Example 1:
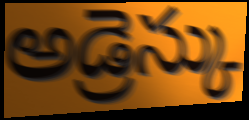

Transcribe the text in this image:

అడ్రెస్కు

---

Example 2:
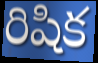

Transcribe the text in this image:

రిషిక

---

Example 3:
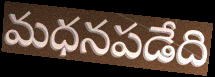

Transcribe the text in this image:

మధనపడేది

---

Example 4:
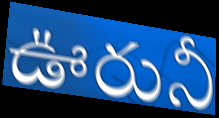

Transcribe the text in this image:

ఊరునీ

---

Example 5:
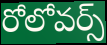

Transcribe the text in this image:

రోలోవర్స్